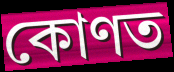
কোণত